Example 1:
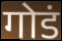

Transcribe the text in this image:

गोडं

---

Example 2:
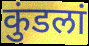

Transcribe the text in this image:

कुंडलां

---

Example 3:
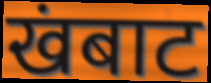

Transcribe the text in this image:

खंबाट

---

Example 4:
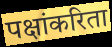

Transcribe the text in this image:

पक्षांकरिता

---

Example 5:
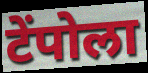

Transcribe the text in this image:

टेंपोला